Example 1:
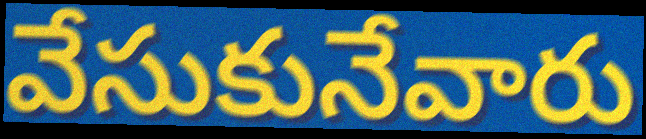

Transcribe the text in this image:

వేసుకునేవారు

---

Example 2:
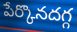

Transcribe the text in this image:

పేర్కొనదగ్గ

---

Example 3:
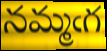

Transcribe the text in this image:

నమ్మఁగ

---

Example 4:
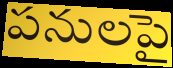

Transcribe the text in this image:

పనులపై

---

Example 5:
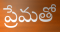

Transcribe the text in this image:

ప్రేమతో